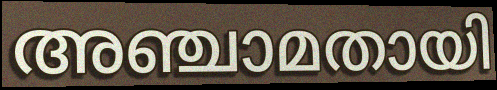
അഞ്ചാമതായി